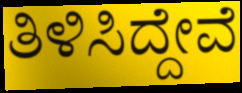
ತಿಳಿಸಿದ್ದೇವೆ